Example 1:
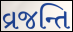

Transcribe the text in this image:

વ્રજન્તિ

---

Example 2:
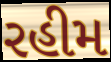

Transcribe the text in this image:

રહીમ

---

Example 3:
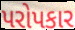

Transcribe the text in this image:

પરોપકાર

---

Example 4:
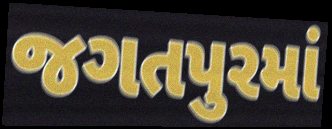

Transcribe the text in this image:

જગતપુરમાં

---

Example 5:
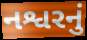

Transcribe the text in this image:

નશ્વરનું